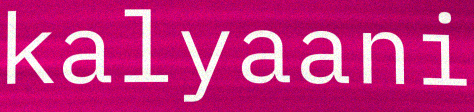
kalyaani